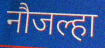
नौजल्हा